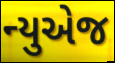
ન્યુએજ